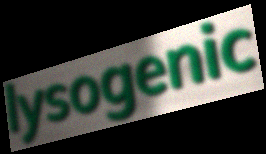
lysogenic